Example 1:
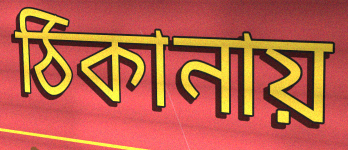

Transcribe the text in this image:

ঠিকানায়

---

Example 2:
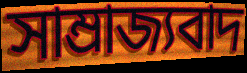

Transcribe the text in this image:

সাম্রাজ্যবাদ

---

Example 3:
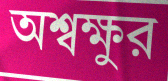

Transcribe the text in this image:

অশ্বক্ষুর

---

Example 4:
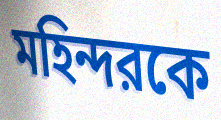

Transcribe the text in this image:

মহিন্দরকে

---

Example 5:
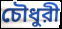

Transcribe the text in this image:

চৌধুরী